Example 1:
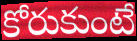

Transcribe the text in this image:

కోరుకుంటే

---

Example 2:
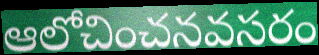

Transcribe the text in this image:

ఆలోచించనవసరం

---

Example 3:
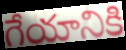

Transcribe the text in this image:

గేయానికి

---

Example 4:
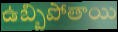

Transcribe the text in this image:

ఉబ్బిపోతాయి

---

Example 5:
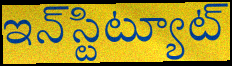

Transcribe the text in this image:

ఇన్‌స్టిట్యూట్